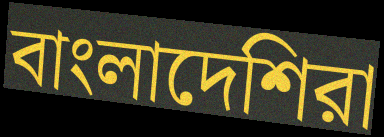
বাংলাদেশিরা